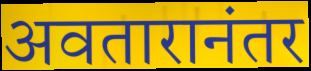
अवतारानंतर